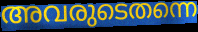
അവരുടെതന്നെ